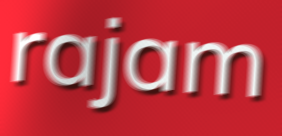
rajam